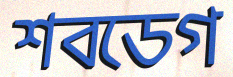
শবডেগ